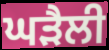
ਘੜੈਲੀ